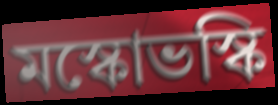
মস্কোভস্কি